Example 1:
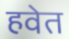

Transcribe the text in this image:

हवेत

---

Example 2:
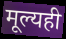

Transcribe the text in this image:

मूल्यही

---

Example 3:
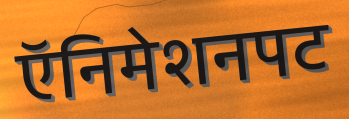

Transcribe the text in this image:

ऍनिमेशनपट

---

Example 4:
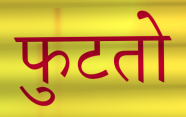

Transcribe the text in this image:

फुटतो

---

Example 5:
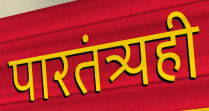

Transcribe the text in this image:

पारतंत्र्यही